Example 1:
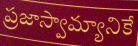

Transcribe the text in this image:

ప్రజాస్వామ్యానికే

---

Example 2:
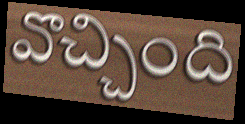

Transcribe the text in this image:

వొచ్చింది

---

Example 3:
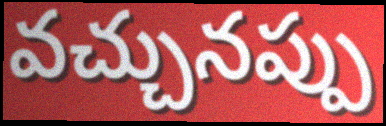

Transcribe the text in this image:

వచ్చునప్పు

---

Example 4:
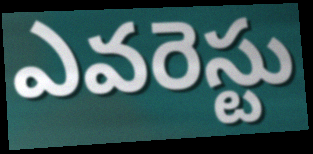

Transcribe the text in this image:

ఎవరెస్టు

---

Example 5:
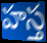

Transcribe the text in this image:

హస్త